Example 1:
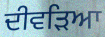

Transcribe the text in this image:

ਦੀਵੜਿਆ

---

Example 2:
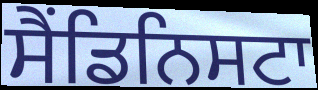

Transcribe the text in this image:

ਸੈਂਡਿਨਿਸਟਾ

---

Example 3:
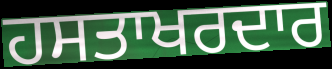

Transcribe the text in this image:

ਹਸਤਾਖਰਦਾਰ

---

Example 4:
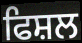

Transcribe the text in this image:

ਫਿਸ਼ਲ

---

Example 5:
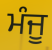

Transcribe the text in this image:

ਮੰਜੂ